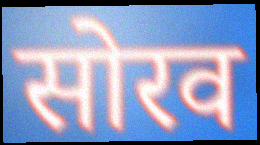
सोरव